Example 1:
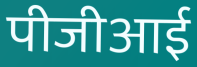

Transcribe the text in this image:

पीजीआई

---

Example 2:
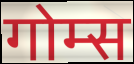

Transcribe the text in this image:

गोम्स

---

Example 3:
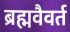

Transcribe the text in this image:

ब्रह्मवैवर्त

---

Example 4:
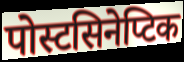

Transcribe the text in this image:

पोस्टसिनेप्टिक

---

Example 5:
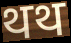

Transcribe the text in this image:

थथ